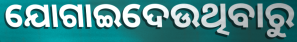
ଯୋଗାଇଦେଉଥିବାରୁ